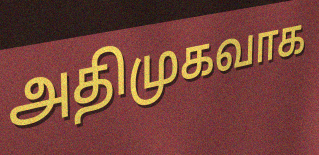
அதிமுகவாக